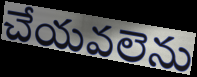
చేయవలెను